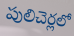
పులిచెర్లలో